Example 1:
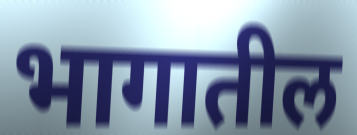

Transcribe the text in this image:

भागातील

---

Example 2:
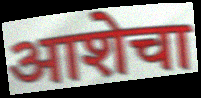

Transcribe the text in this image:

आशेचा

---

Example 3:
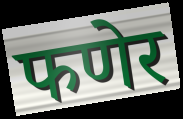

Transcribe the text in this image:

फणेर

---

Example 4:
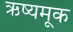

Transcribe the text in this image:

ऋष्यमूक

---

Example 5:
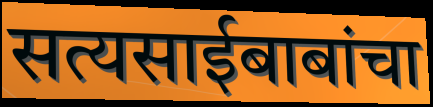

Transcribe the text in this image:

सत्यसाईबाबांचा